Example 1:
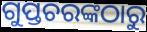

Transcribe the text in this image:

ଗୁପ୍ତଚରଙ୍କଠାରୁ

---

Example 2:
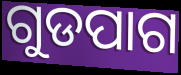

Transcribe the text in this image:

ଗୁଡପାଗ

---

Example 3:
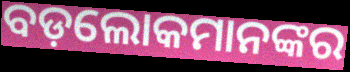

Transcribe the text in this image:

ବଡ଼ଲୋକମାନଙ୍କର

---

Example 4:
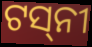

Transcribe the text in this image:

ଟସ୍‌ନୀ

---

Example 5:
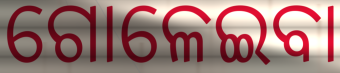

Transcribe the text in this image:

ଗୋଳେଇବା